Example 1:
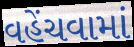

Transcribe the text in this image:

વહેંચવામાં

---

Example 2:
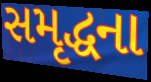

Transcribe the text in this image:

સમૃદ્ધના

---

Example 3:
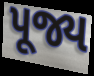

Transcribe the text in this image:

પૂજ્ય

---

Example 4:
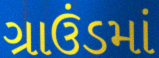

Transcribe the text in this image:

ગ્રાઉંડમાં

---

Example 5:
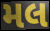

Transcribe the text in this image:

મલ